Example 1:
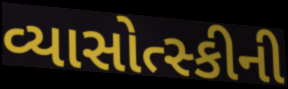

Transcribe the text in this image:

વ્યાસોત્સ્કીની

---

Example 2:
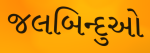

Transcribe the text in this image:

જલબિન્દુઓ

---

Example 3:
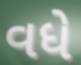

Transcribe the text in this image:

વધે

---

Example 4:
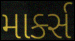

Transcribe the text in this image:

માર્ક્સ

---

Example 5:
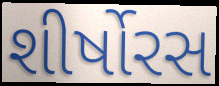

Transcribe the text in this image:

શીર્ષોરસ